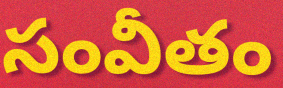
సంవీతం